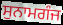
ਸੁਨਾਮਗੰਜ